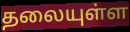
தலையுள்ள